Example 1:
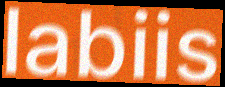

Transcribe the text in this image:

labiis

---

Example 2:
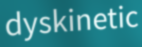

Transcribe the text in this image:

dyskinetic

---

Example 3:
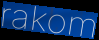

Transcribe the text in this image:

rakom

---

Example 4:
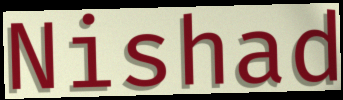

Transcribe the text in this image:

Nishad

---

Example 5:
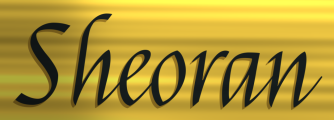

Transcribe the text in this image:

Sheoran